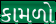
કામળો